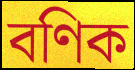
বণিক